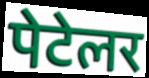
पेटेलर